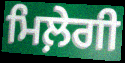
ਮਿਲ਼ੇਗੀ